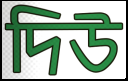
দিউ